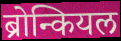
ब्रोन्कियल